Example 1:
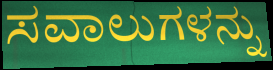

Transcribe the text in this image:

ಸವಾಲುಗಳನ್ನು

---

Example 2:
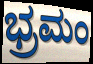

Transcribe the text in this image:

ಭ್ರಮಂ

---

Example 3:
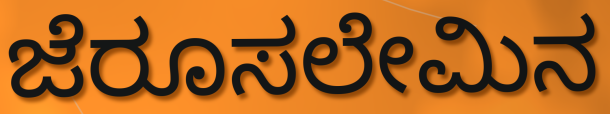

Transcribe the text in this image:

ಜೆರೂಸಲೇಮಿನ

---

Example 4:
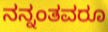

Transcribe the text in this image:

ನನ್ನಂತವರೂ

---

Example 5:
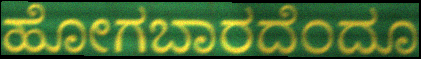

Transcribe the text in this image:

ಹೋಗಬಾರದೆಂದೂ